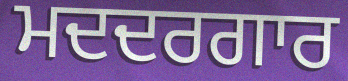
ਮਦਦਰਗਾਰ